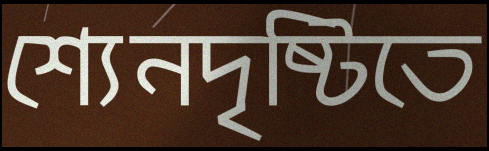
শ্যেনদৃষ্টিতে